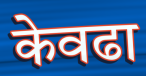
केवढा